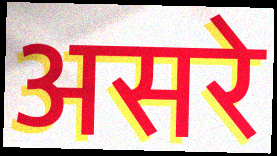
असरे